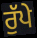
ਰੁੱਪੇ